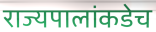
राज्यपालांकडेच